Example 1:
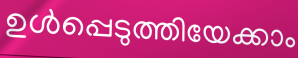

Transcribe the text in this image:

ഉൾപ്പെടുത്തിയേക്കാം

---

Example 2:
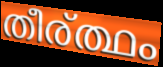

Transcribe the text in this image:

തീര്ത്ഥം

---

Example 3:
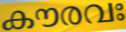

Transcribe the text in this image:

കൗരവഃ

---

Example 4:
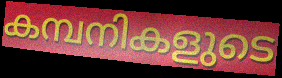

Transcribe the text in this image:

കമ്പനികളുടെ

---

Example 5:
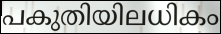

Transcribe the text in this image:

പകുതിയിലധികം